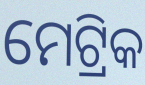
ମେଟ୍ରିକ